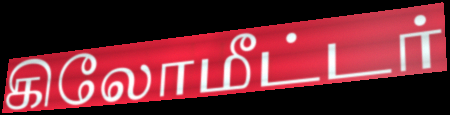
கிலோமீட்டர்